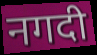
नगदी